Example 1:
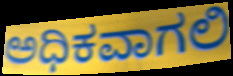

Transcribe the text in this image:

ಅಧಿಕವಾಗಲಿ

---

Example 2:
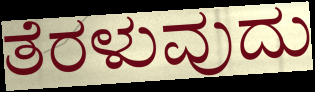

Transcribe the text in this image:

ತೆರಳುವುದು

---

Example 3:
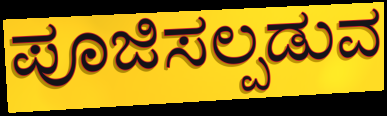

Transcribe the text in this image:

ಪೂಜಿಸಲ್ಪಡುವ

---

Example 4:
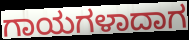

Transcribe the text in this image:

ಗಾಯಗಳಾದಾಗ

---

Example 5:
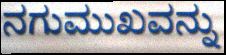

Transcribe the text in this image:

ನಗುಮುಖವನ್ನು